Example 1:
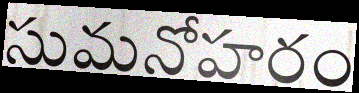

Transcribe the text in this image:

సుమనోహరం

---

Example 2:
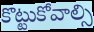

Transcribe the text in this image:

కొట్టుకోవాల్సి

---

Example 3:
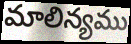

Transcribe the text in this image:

మాలిన్యము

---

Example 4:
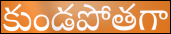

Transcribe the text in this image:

కుండపోతగా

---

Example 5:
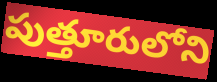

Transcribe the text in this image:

పుత్తూరులోని